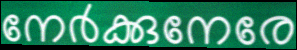
നേർക്കുനേരേ